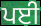
ਪਈ